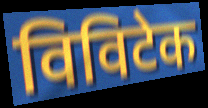
विविटेक